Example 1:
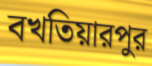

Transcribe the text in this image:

বখতিয়ারপুর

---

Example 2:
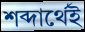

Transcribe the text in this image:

শব্দার্থেই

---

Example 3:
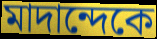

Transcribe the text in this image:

মাদান্দেকে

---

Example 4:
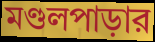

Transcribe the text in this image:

মণ্ডলপাড়ার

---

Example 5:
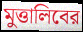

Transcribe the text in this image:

মুত্তালিবের